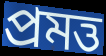
প্রমত্ত